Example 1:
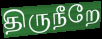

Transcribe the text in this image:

திருநீறே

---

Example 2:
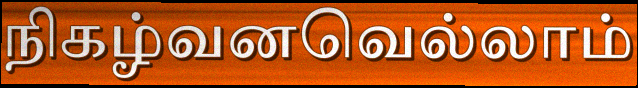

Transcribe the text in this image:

நிகழ்வனவெல்லாம்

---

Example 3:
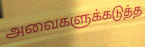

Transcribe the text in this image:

அவைகளுக்கடுத்த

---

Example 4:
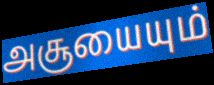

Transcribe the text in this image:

அசூயையும்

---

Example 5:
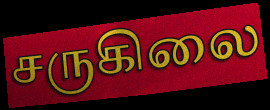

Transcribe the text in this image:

சருகிலை